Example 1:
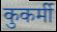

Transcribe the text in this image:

कुकर्मी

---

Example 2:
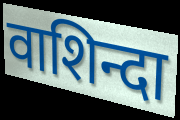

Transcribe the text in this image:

वाशिन्दा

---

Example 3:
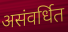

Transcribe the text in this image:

असंवर्धित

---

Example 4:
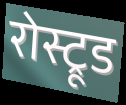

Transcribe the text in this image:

रोस्ट्रूड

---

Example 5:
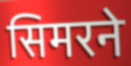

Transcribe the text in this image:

सिमरने